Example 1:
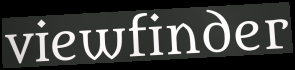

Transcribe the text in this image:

viewfinder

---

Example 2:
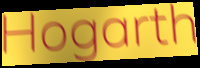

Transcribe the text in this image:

Hogarth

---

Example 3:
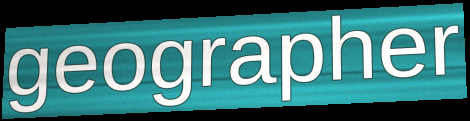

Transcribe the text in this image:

geographer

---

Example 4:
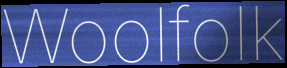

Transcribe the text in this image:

Woolfolk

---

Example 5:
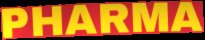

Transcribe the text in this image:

PHARMA